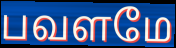
பவளமே